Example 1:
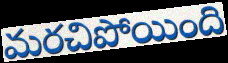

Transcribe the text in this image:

మరచిపోయింది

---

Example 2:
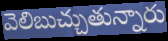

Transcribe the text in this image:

వెలిబుచ్చుతున్నారు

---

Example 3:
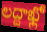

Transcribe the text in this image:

లద్దాఖ్లో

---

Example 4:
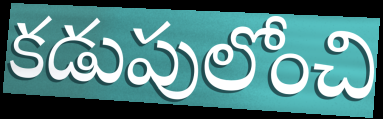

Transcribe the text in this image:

కడుపులోంచి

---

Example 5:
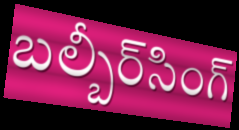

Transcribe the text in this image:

బల్బీర్‌సింగ్